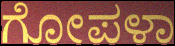
ಗೋಪಳಾ